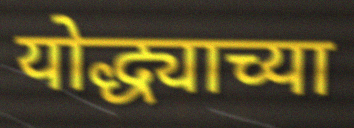
योद्ध्याच्या